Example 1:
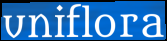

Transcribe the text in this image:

uniflora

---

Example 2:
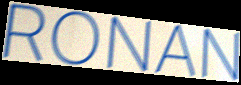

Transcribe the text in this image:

RONAN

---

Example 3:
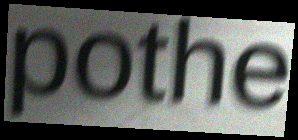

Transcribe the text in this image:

pothe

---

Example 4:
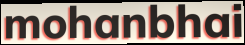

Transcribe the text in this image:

mohanbhai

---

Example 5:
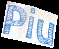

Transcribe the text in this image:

Piu